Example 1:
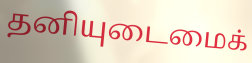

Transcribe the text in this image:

தனியுடைமைக்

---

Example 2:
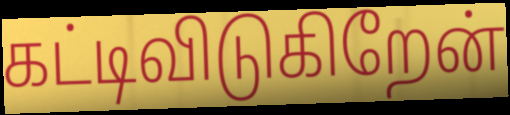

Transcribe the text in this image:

கட்டிவிடுகிறேன்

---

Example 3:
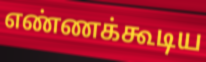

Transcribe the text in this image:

எண்ணக்கூடிய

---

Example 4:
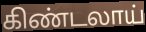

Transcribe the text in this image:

கிண்டலாய்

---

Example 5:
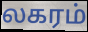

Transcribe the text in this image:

லகரம்